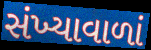
સંખ્યાવાળાં